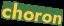
choron